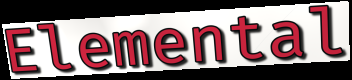
Elemental